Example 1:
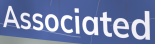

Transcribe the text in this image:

Associated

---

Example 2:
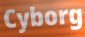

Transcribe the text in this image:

Cyborg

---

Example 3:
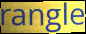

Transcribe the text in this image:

rangle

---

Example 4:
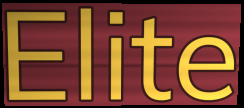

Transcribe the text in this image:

Elite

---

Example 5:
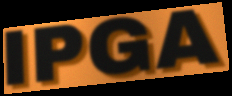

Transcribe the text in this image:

IPGA